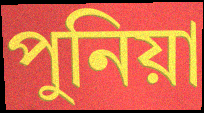
পুনিয়া